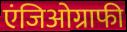
एंजिओग्राफी